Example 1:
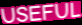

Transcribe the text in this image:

USEFUL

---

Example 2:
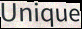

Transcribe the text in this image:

Unique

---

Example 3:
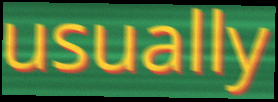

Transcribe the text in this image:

usually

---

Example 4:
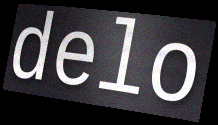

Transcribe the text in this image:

delo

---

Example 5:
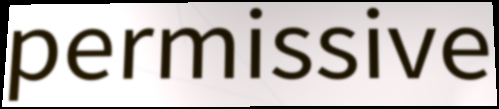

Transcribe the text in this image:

permissive